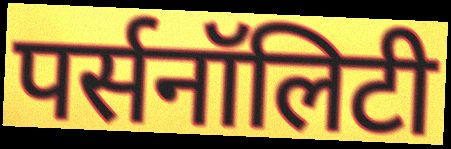
पर्सनॉलिटी